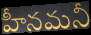
హీనమనీ